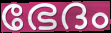
ഭേദം